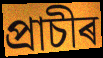
প্ৰাচীৰ